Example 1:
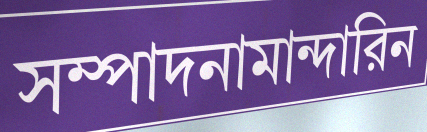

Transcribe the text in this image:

সম্পাদনামান্দারিন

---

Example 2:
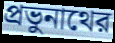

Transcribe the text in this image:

প্রভুনাথের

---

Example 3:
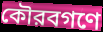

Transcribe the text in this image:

কৌরবগণে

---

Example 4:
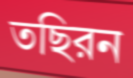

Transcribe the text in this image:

তছিরন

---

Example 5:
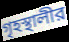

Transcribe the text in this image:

গৃহস্থালীর